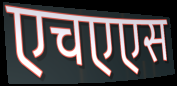
एचएएस